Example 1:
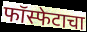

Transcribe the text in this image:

फॉस्फेटाचा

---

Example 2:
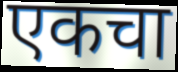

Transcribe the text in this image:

एकचा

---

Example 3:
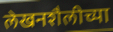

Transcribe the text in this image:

लेखनशैलीच्या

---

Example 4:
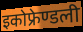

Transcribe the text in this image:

इकोफ्रेण्डली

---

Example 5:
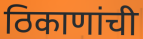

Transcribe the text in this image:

ठिकाणांची